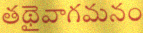
తథైవాగమనం